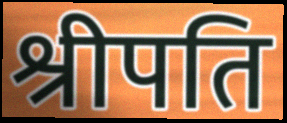
श्रीपति